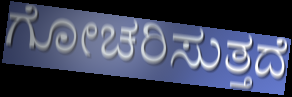
ಗೋಚರಿಸುತ್ತದೆ